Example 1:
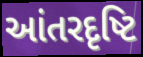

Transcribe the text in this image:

આંતરદૃષ્ટિ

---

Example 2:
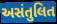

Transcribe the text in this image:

અસંતુલિત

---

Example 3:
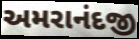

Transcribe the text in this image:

અમરાનંદજી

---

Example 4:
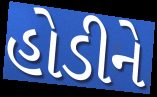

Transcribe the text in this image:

હોડીને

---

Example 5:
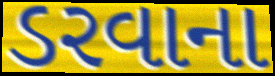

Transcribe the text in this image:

ડરવાના